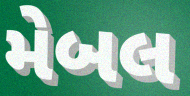
મેબલ